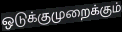
ஒடுக்குமுறைக்கும்